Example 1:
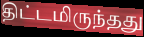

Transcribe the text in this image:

திட்டமிருந்தது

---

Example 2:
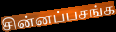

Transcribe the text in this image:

சின்னப்பசங்க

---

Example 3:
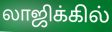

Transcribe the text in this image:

லாஜிக்கில்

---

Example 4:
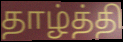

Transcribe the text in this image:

தாழ்த்தி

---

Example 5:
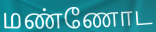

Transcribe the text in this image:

மண்ணோட